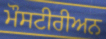
ਮੌਸਟੀਰੀਅਨ